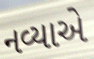
નવ્યાએ